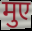
मुए